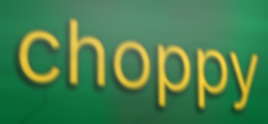
choppy